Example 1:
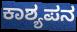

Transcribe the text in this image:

ಕಾಶ್ಯಪನ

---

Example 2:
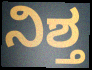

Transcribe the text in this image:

ನಿಶ್ತ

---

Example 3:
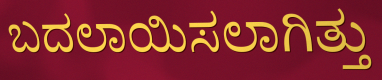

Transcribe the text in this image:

ಬದಲಾಯಿಸಲಾಗಿತ್ತು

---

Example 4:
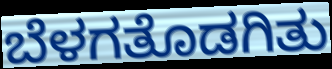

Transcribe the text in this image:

ಬೆಳಗತೊಡಗಿತು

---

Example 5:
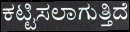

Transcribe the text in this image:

ಕಟ್ಟಿಸಲಾಗುತ್ತಿದೆ